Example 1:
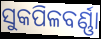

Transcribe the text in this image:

ସୁକପିଳବର୍ଣ୍ଣା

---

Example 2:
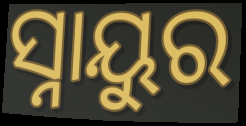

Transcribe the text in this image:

ସ୍ନାୟୁର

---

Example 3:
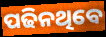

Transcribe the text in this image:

ପଢିନଥିବେ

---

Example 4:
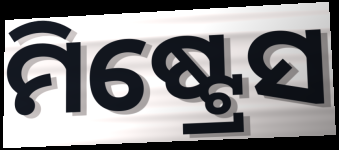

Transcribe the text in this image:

ମିଷ୍ଟ୍ରେସ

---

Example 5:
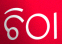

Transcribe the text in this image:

ଚିଠା